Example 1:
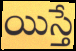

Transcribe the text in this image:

యిస్తే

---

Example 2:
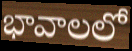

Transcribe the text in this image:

భావాలలో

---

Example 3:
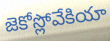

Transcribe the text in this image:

జెకోస్లోవేకియా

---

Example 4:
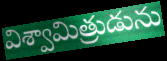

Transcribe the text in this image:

విశ్వామిత్రుడును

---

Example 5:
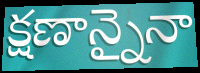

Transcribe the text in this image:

క్షణాన్నైనా